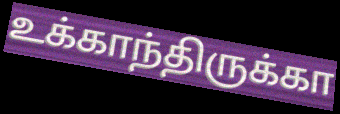
உக்காந்திருக்கா